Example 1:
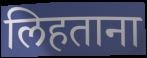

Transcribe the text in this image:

लिहताना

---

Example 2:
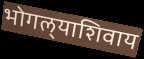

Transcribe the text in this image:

भोगल्याशिवाय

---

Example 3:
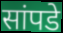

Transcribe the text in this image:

सांपडे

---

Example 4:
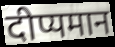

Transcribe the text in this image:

दीप्यमान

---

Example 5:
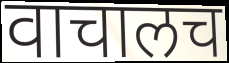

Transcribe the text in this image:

वाचालच